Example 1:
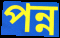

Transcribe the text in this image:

পন্ন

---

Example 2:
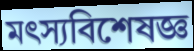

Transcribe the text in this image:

মৎস্যবিশেষজ্ঞ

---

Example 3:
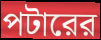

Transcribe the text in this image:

পটারের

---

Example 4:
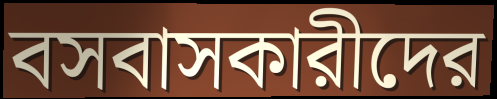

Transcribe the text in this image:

বসবাসকারীদের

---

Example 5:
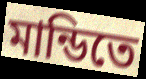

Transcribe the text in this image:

মান্ডিতে